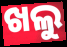
ଖଲୁ